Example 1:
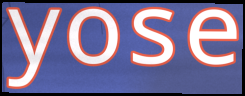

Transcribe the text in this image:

yose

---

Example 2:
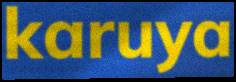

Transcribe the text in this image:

karuya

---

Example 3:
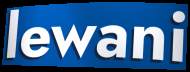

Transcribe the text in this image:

lewani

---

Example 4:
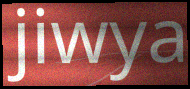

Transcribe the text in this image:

jiwya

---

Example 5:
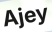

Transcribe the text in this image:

Ajey